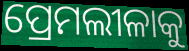
ପ୍ରେମଲୀଳାକୁ